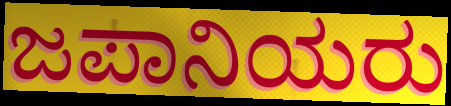
ಜಪಾನಿಯರು